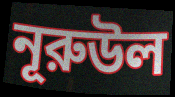
নূরুউল